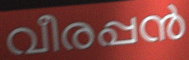
വീരപ്പൻ